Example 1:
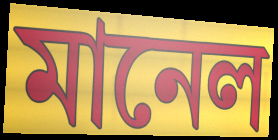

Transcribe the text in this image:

মানেল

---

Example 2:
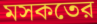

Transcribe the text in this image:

মসকতের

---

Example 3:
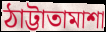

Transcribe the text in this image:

ঠাট্টাতামাশা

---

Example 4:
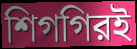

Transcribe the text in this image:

শিগগিরই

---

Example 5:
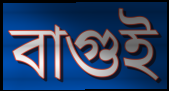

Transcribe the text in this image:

বাগুই